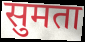
सुमता